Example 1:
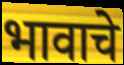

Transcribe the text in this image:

भावाचे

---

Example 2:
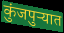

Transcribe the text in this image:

कुंजपुऱ्यात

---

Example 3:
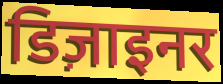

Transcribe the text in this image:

डिज़ाइनर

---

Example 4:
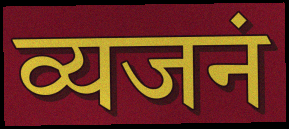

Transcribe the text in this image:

व्यजनं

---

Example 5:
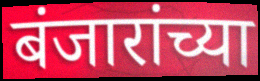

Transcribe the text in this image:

बंजारांच्या